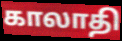
காலாதி